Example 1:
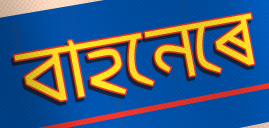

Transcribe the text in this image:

বাহনেৰে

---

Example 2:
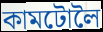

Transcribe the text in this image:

কামটোলৈ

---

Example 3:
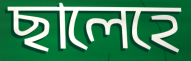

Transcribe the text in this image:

ছালেহে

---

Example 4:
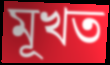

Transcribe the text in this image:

মূখত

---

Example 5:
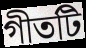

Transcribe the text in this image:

গীতটি